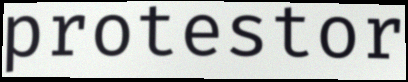
protestor